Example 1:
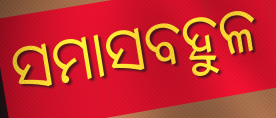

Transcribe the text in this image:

ସମାସବହୁଳ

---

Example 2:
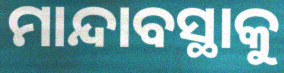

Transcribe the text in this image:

ମାନ୍ଦାବସ୍ଥାକୁ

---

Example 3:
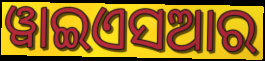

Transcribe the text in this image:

ୱାଇଏସଆର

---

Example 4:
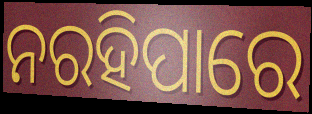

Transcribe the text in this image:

ନରହିପାରେ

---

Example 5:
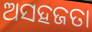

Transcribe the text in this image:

ଅସହଜତା